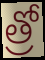
త్రో